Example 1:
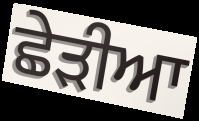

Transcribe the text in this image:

ਛੇੜੀਆ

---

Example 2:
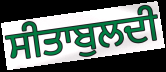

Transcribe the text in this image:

ਸੀਤਾਬੁਲਦੀ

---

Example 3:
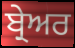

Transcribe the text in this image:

ਬ੍ਰੇਅਰ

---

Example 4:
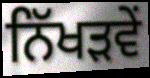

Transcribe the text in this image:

ਨਿੱਖੜਵੇਂ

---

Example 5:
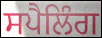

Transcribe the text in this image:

ਸਪੈਲਿੰਗ